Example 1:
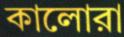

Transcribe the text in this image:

কালোরা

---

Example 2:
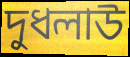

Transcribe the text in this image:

দুধলাউ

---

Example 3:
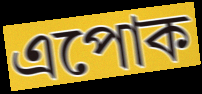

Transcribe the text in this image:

এপোক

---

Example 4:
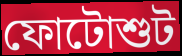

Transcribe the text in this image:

ফোটোশুট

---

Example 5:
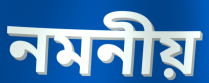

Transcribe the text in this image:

নমনীয়